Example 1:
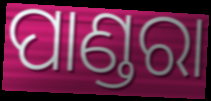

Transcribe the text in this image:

ପାଣ୍ଡରା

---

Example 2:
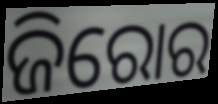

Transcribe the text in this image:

ଜିରୋର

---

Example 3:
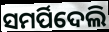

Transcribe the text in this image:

ସମର୍ପିଦେଲି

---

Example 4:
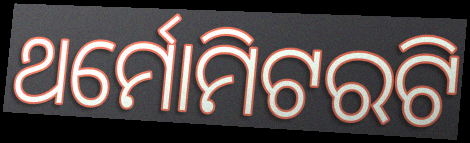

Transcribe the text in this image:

ଥର୍ମୋମିଟରଟି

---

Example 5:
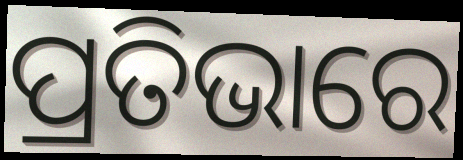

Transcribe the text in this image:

ପ୍ରତିଭାରେ